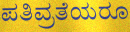
ಪತಿವ್ರತೆಯರೂ